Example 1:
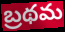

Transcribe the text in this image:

బ్రథమ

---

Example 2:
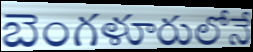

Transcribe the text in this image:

బెంగళూరులోనే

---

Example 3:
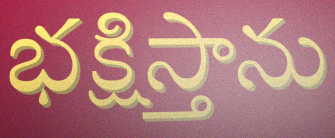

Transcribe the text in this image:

భక్షిస్తాను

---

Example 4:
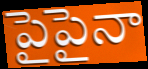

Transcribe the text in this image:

పైపైనా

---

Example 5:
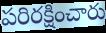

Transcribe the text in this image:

పరిరక్షించారు